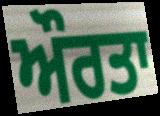
ਔਰਤਾ